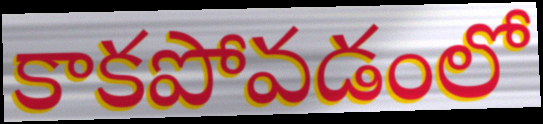
కాకపోవడంలో